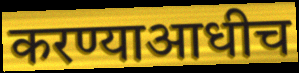
करण्याआधीच